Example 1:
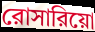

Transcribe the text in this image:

রোসারিয়ো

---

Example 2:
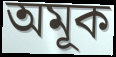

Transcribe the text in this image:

অমূক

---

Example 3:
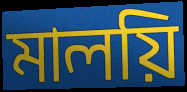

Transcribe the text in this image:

মালয়ি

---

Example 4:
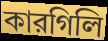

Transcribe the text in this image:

কারগিলি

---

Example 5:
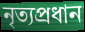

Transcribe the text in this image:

নৃত্যপ্রধান